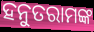
ହନୁତରାମଙ୍କ